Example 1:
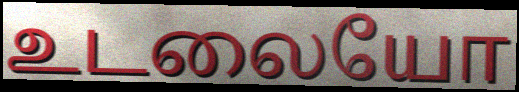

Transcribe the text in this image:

உடலையோ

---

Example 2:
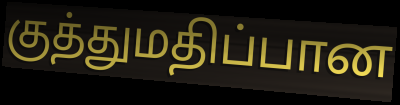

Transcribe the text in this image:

குத்துமதிப்பான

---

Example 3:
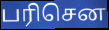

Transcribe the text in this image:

பரிசென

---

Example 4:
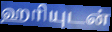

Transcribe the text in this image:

ஹரியுடன்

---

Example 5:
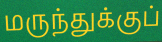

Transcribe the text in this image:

மருந்துக்குப்